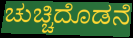
ಚುಚ್ಚಿದೊಡನೆ